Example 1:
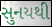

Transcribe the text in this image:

સુનયથી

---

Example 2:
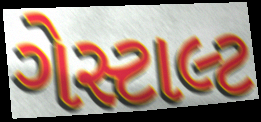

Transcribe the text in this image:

ગેસ્ટાલ્ટ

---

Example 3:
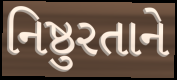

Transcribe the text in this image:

નિષ્ઠુરતાને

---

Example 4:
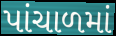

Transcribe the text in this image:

પાંચાળમાં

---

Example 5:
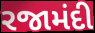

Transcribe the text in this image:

રજામંદી